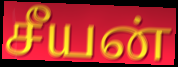
சீயன்